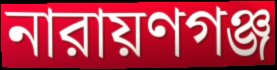
নারায়ণগঞ্জ